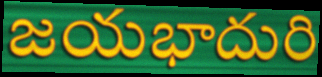
జయభాదురి